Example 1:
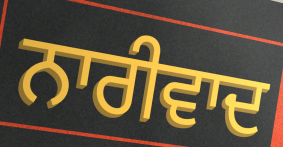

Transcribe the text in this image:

ਨਾਰੀਵਾਦ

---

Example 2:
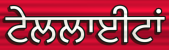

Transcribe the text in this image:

ਟੇਲਲਾਈਟਾਂ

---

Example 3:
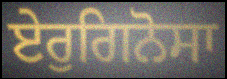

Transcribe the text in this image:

ਏਰੁਗਿਨੋਸਾ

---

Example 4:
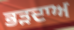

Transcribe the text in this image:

ਭੜਦਾਅ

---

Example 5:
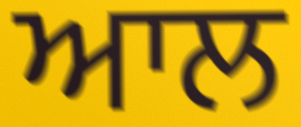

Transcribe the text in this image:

ਆਲ